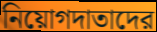
নিয়োগদাতাদের